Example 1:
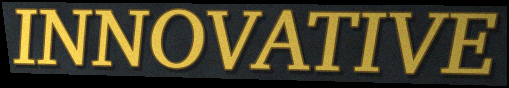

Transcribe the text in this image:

INNOVATIVE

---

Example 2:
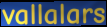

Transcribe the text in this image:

vallalars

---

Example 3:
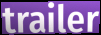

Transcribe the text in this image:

trailer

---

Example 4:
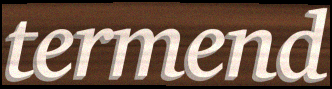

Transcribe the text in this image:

termend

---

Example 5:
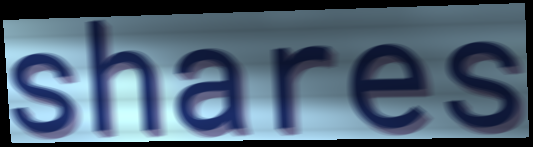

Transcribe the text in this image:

shares